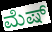
ಮೆಷ್